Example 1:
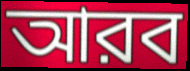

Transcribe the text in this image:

আরব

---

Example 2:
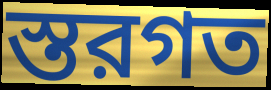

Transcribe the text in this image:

স্তরগত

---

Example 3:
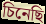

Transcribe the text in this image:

চিনেছি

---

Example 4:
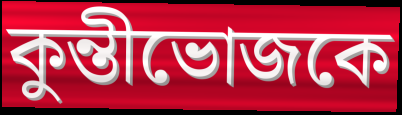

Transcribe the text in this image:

কুন্তীভোজকে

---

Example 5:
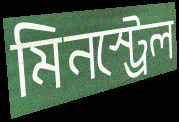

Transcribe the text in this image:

মিনস্ট্রেল